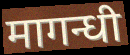
मागन्धी